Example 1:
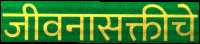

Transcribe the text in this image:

जीवनासक्तीचे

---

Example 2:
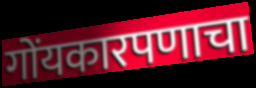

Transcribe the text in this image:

गोंयकारपणाचा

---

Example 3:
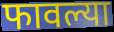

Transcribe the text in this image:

फावल्या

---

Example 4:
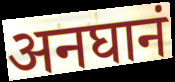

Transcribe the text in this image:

अनघानं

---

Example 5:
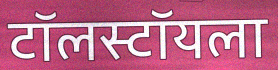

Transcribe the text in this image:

टॉलस्टॉयला